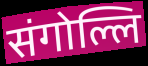
संगोल्लि